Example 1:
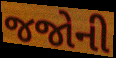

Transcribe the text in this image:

જજોની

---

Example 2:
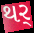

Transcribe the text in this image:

થર્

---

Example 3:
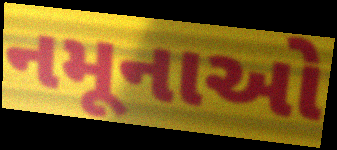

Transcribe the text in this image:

નમૂનાઓ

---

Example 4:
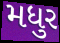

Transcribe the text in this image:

મધુર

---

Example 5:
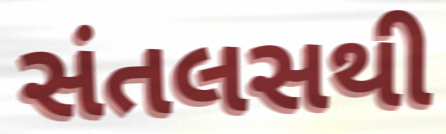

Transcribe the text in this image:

સંતલસથી